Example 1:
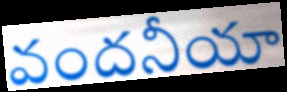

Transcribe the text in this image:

వందనీయా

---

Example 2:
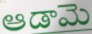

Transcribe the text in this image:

ఆడామె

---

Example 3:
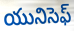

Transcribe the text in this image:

యునిసెఫ్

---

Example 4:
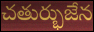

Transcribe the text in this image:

చతుర్భుజేన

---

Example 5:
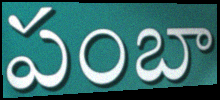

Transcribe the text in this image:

పంబా